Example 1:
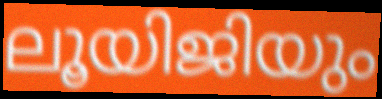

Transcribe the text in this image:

ലൂയിജിയും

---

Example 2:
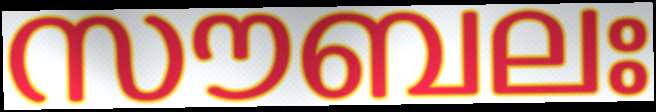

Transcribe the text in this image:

സൗബലഃ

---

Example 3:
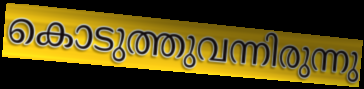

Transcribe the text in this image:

കൊടുത്തുവന്നിരുന്നു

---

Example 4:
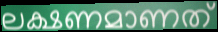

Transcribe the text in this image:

ലക്ഷണമാണത്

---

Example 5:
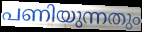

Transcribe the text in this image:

പണിയുന്നതും